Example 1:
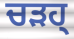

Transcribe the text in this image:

ਚੜਹ੍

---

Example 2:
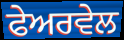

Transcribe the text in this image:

ਫੇਅਰਵੇਲ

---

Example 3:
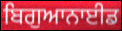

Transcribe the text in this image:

ਬਿਗੁਆਨਾਈਡ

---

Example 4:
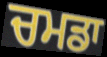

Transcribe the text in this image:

ਚਮਡਾ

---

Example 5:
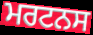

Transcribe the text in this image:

ਮਰਟਨਸ